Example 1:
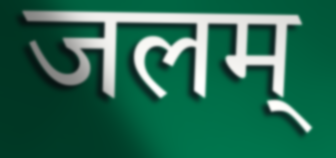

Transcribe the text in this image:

जलम्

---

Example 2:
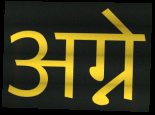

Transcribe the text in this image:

अग्ने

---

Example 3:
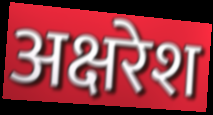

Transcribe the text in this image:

अक्षरेश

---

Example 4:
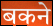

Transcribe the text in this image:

बकने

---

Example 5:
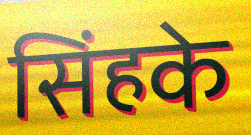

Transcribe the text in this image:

सिंहके